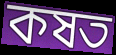
কষত